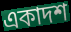
একাদশ